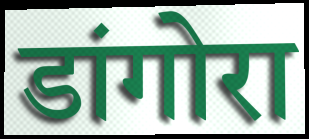
डांगोरा